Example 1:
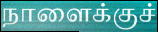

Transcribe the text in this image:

நாளைக்குச்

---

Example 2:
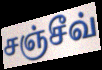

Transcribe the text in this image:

சஞ்சீவ்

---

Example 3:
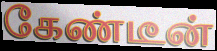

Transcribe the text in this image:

கேண்டீன்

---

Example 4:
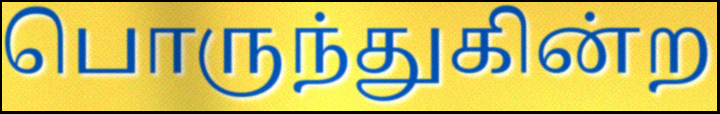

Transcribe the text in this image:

பொருந்துகின்ற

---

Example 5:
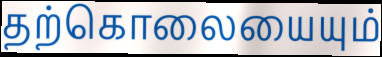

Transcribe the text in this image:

தற்கொலையையும்